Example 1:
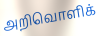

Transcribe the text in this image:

அறிவொளிக்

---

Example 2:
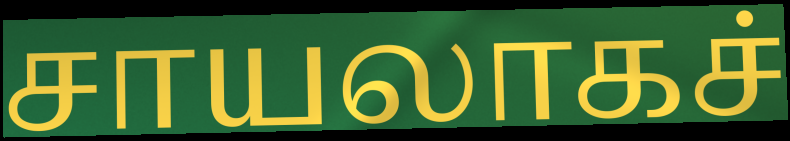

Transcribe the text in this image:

சாயலாகச்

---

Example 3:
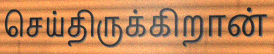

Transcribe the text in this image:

செய்திருக்கிறான்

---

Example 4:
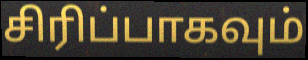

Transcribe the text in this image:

சிரிப்பாகவும்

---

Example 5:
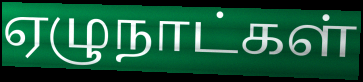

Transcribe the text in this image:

ஏழுநாட்கள்